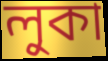
লুকা